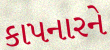
કાપનારને